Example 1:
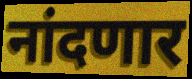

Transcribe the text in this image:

नांदणार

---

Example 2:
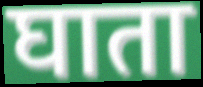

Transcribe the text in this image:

घाता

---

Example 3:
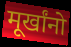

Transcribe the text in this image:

मूर्खांनो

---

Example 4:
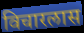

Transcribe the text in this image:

विचारलास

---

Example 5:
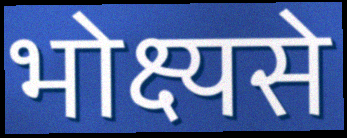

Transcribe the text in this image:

भोक्ष्यसे